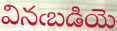
వినఁబడియె